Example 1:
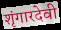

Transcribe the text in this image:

शृंगारदेवी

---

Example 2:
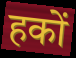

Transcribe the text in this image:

हकों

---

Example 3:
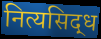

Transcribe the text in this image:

नित्यसिद्ध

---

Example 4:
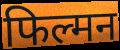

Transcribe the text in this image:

फिल्मन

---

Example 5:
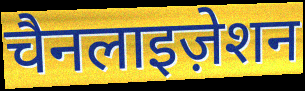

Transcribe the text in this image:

चैनलाइज़ेशन